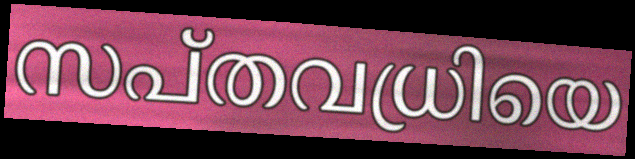
സപ്തവധ്രിയെ